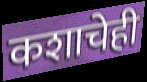
कशाचेही